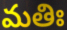
మతిః